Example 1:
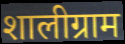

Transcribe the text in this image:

शालीग्राम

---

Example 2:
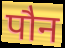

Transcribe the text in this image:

पौन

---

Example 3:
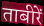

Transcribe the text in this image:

ताबीरें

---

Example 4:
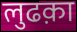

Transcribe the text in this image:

लुढक़ा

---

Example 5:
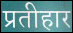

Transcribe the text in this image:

प्रतीहार